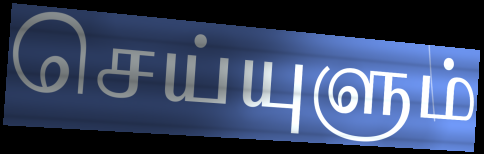
செய்யுளும்